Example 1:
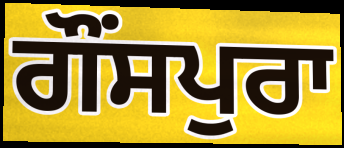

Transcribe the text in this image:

ਗੌਂਸਪੁਰਾ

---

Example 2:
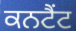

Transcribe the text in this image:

ਕਨਟੈਂਟ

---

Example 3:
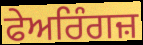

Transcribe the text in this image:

ਫੇਅਰਿੰਗਜ਼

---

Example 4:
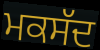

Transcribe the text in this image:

ਮਕਸੱਦ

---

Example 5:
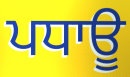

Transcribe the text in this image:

ਪਧਾਊ